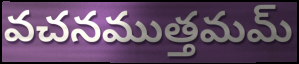
వచనముత్తమమ్